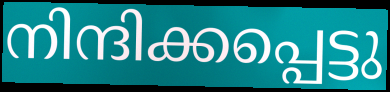
നിന്ദിക്കപ്പെട്ടു